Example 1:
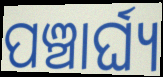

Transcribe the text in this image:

ପଞ୍ଚାର୍ଘ୍ୟ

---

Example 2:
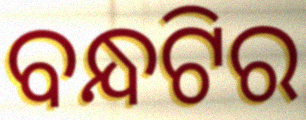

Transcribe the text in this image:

ବନ୍ଧଟିର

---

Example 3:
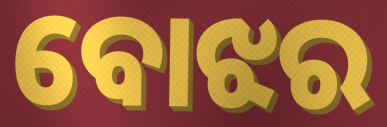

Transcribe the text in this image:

ବୋଝର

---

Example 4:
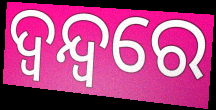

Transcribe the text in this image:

ଦ୍ୱନ୍ଦ୍ବରେ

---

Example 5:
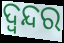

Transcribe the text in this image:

ଦ୍ବନ୍ଦର